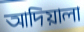
আদিয়ালা